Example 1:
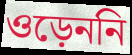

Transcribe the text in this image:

ওড়েননি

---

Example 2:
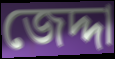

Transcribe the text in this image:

জেদ্দা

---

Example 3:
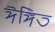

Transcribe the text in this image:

ঈঙ্গিত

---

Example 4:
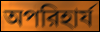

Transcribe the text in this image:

অপরিহার্য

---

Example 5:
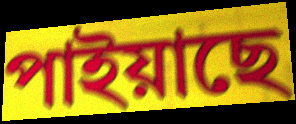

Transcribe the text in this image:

পাইয়াছে